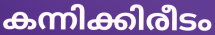
കന്നിക്കിരീടം